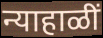
न्याहाळीं